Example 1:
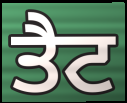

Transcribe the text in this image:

ਤੈਟ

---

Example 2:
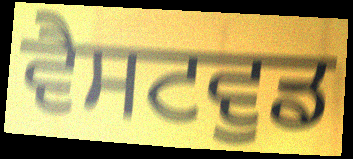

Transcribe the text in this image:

ਵੈਸਟਵੁਡ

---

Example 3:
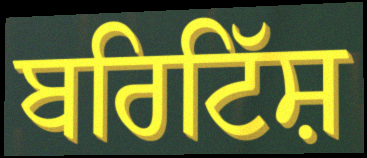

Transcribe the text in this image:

ਬਰਿਟਿੱਸ਼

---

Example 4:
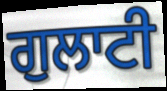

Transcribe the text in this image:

ਗੁਲਾਟੀ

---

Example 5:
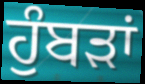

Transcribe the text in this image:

ਹੁੰਬੜਾਂ